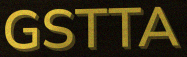
GSTTA